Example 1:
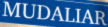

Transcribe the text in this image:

MUDALIAR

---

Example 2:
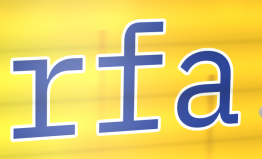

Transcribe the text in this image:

rfa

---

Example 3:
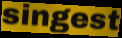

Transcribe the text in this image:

singest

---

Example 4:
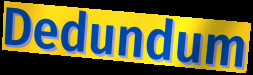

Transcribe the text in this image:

Dedundum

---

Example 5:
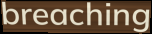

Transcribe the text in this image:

breaching